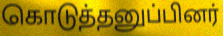
கொடுத்தனுப்பினர்